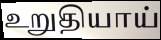
உறுதியாய்